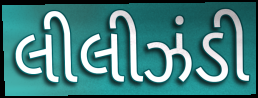
લીલીઝંડી